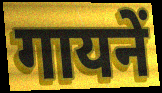
गायनें